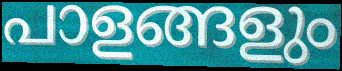
പാളങ്ങളും